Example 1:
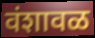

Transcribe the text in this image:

वंशावळ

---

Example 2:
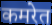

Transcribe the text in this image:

कमरेत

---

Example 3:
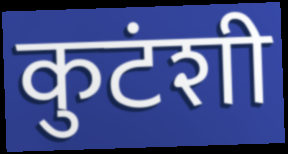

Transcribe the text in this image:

कुटंशी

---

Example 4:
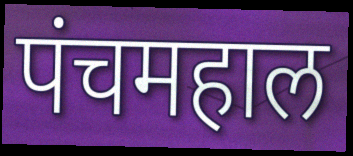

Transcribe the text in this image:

पंचमहाल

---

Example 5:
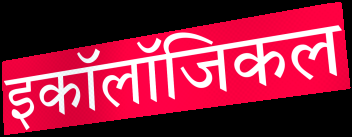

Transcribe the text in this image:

इकॉलॉजिकल